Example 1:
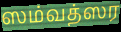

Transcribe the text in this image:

ஸம்வத்ஸர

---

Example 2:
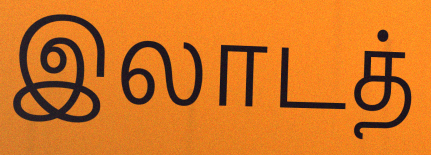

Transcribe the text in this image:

இலாடத்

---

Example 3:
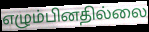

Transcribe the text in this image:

எழும்பினதில்லை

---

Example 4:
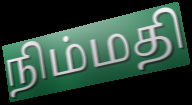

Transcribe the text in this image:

நிம்மதி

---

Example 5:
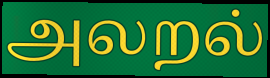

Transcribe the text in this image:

அலறல்